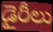
డైరీలు